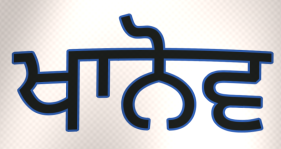
ਖਾਨੋਵ